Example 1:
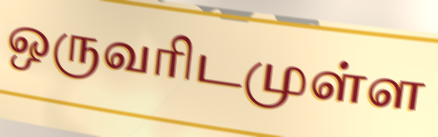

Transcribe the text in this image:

ஒருவரிடமுள்ள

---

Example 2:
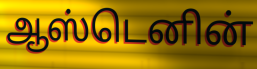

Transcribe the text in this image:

ஆஸ்டெனின்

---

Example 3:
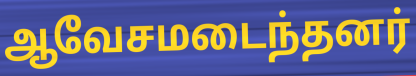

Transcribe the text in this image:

ஆவேசமடைந்தனர்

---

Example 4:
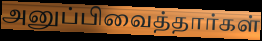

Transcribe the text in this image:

அனுப்பிவைத்தார்கள்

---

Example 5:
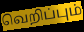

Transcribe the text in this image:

வெறிப்பும்